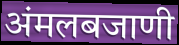
अंमलबजाणी